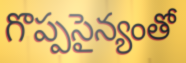
గొప్పసైన్యంతో